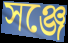
সঞ্জে